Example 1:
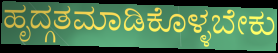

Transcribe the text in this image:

ಹೃದ್ಗತಮಾಡಿಕೊಳ್ಳಬೇಕು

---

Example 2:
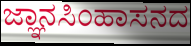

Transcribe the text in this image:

ಜ್ಞಾನಸಿಂಹಾಸನದ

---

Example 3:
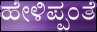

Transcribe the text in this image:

ಹೇಳಿಪ್ಪಂತೆ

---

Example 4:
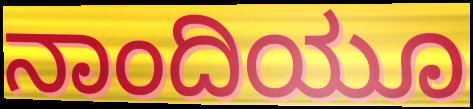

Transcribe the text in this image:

ನಾಂದಿಯೂ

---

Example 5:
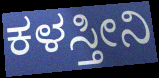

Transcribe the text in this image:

ಕಳಸ್ತೀನಿ